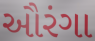
ઔરંગા